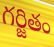
గర్జితం